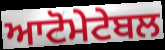
ਆਟੋਮੇਟੇਬਲ